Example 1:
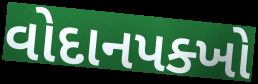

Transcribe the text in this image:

વોદાનપક્ખો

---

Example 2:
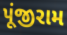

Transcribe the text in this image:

પૂંજીરામ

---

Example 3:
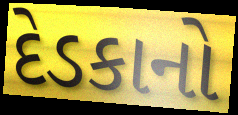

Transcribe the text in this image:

દેડકાનો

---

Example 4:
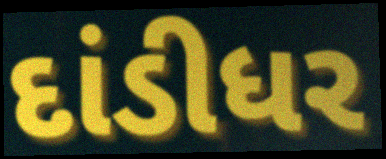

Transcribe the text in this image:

દાંડીધર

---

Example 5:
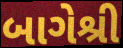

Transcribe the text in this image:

બાગેશ્રી